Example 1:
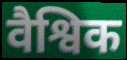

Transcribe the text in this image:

वैश्विक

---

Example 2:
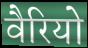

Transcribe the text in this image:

वैरियो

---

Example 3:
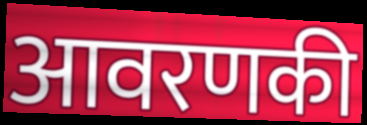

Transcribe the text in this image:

आवरणकी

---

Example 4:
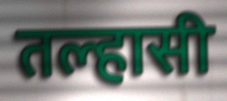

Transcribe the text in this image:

तल्हासी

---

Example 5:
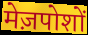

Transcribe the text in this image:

मेज़पोशों